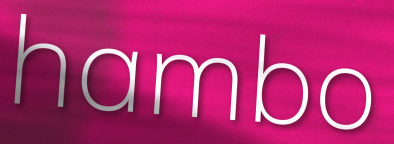
hambo